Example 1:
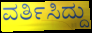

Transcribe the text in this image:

ವರ್ತಿಸಿದ್ದು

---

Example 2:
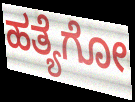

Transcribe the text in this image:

ಹತ್ಯೆಗೋ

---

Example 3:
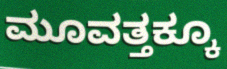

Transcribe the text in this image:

ಮೂವತ್ತಕ್ಕೂ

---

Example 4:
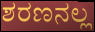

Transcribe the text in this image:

ಶರಣನಲ್ಲ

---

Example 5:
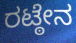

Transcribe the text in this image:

ರಟ್ಠೇನ